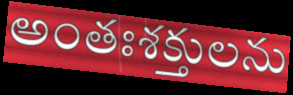
అంతఃశక్తులను